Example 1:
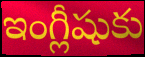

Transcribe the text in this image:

ఇంగ్లీషుకు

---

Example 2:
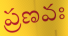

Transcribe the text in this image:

ప్రణవః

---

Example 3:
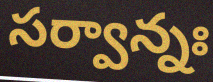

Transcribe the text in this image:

సర్వాన్నః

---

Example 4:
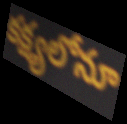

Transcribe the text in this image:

కక్ష్యలోనూ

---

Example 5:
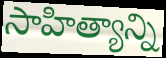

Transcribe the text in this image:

సాహిత్యాన్ని